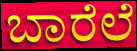
ಬಾರೆಲೆ